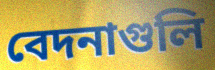
বেদনাগুলি